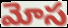
మోస